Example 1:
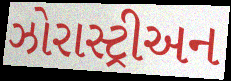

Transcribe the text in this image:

ઝોરાસ્ટ્રીઅન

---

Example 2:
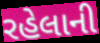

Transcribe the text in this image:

રહેલાની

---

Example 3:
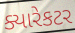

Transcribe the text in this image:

ક્યારેકટર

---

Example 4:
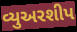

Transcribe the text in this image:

વ્યુઅરશીપ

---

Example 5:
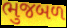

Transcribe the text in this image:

ભુજબળ